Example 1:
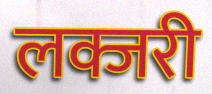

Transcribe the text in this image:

लक्जरी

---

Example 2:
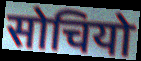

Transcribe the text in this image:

सोचियो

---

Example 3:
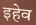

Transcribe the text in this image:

इहेव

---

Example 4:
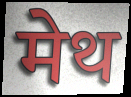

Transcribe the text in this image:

मेथ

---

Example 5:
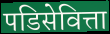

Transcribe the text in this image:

पडिसेवित्ता